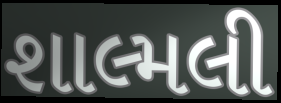
શાલ્મલી